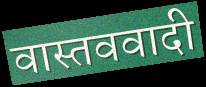
वास्तववादी